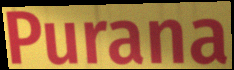
Purana